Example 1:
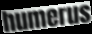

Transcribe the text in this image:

humerus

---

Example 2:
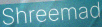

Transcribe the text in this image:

Shreemad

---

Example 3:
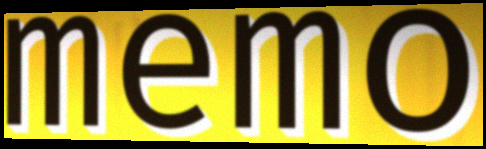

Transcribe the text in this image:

memo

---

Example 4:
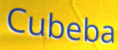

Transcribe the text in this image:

Cubeba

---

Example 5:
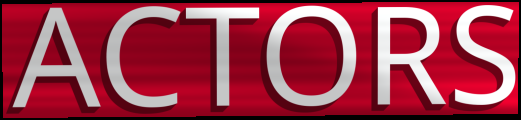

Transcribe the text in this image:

ACTORS